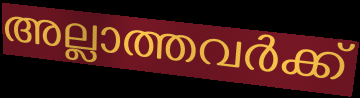
അല്ലാത്തവർക്ക്